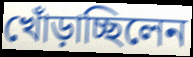
খোঁড়াচ্ছিলেন